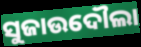
ସୁଜାଉଦୌଲା